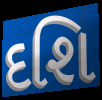
દશિ